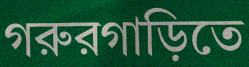
গরুরগাড়িতে